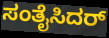
ಸಂತೈಸಿದರ್